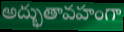
అద్భుతావహంగా